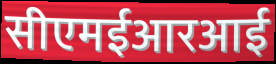
सीएमईआरआई